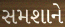
સમશાને